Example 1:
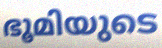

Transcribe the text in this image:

ഭൂമിയുടെ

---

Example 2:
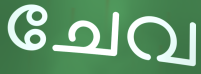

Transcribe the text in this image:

ചേവ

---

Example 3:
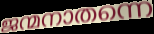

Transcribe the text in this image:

ജന്മനാതന്നെ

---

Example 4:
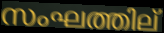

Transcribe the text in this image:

സംഘത്തില്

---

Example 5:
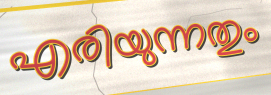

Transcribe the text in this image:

എരിയുന്നതും